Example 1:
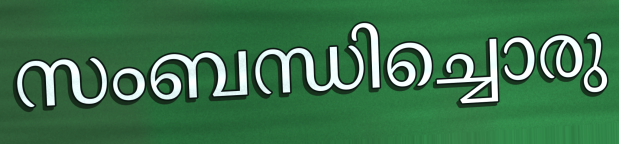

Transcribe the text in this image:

സംബന്ധിച്ചൊരു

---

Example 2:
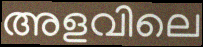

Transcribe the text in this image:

അളവിലെ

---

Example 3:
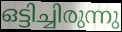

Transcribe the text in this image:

ഒട്ടിച്ചിരുന്നു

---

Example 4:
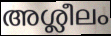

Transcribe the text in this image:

അശ്ലീലം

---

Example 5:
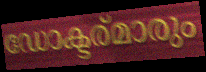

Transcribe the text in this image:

ഡോക്ടര്മാരും